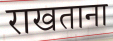
राखताना